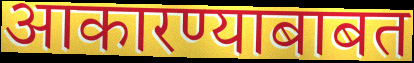
आकारण्याबाबत